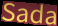
Sada